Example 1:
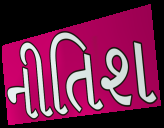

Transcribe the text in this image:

નીતિશ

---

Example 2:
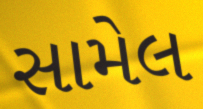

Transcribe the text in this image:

સામેલ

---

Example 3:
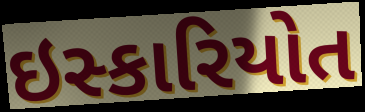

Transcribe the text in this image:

ઇસ્કારિયોત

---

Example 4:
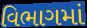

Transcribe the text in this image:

વિભાગમાં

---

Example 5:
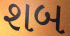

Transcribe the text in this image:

શબ